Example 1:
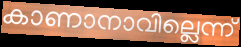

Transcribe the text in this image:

കാണാനാവില്ലെന്ന്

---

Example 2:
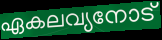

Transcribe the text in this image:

ഏകലവ്യനോട്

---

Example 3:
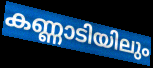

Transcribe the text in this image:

കണ്ണാടിയിലും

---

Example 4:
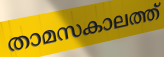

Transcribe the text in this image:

താമസകാലത്ത്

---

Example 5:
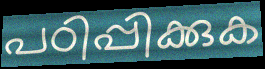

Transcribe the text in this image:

പഠിപ്പിക്കുക